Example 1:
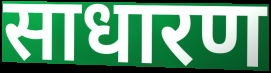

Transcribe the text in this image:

साधारण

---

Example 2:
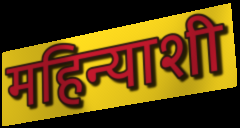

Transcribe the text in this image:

महिन्याशी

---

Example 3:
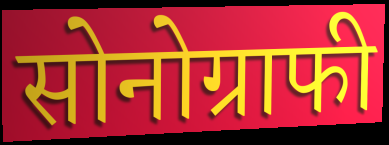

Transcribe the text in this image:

सोनोग्राफी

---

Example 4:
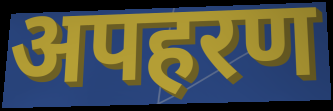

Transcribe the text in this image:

अपहरण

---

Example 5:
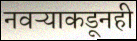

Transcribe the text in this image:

नवऱ्याकडूनही